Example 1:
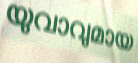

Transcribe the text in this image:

യുവാവുമായ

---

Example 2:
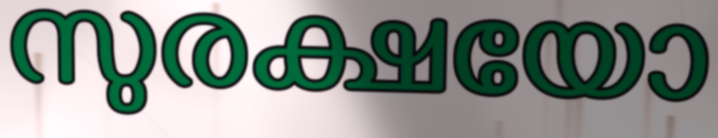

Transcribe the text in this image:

സുരക്ഷയോ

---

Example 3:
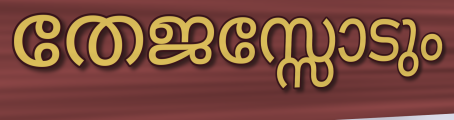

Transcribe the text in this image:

തേജസ്സോടും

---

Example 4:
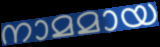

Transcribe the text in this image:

നാമമായ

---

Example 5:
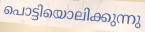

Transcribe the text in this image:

പൊട്ടിയൊലിക്കുന്നു